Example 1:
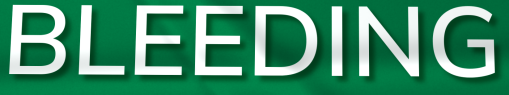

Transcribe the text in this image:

BLEEDING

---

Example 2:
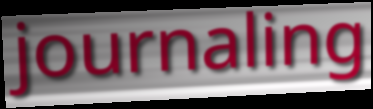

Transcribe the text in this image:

journaling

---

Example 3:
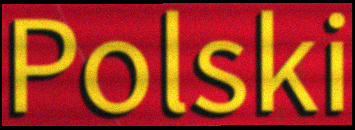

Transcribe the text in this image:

Polski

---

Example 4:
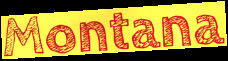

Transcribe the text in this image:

Montana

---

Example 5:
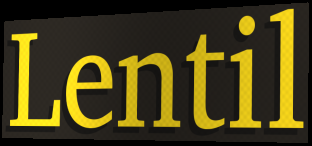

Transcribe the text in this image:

Lentil